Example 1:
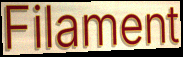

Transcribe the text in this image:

Filament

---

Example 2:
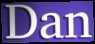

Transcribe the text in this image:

Dan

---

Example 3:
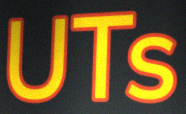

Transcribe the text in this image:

UTs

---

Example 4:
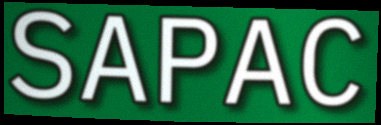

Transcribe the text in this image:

SAPAC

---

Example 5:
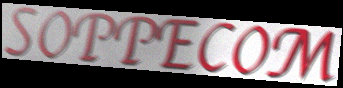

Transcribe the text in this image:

SOPPECOM